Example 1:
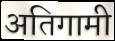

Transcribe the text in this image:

अतिगामी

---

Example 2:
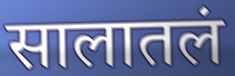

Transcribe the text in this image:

सालातलं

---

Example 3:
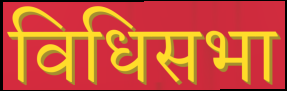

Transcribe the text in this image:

विधिसभा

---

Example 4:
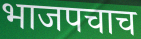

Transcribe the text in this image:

भाजपचाच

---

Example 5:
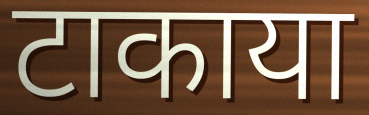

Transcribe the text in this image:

टाकाया